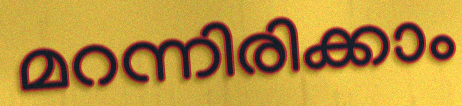
മറന്നിരിക്കാം